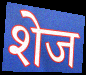
शेज